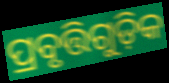
ପ୍ରବୃତ୍ତିଗୁଡ଼ିକ